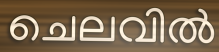
ചെലവിൽ